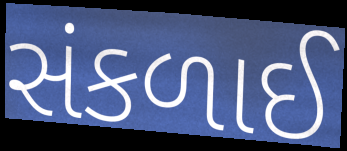
સંકળાઈ